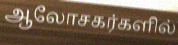
ஆலோசகர்களில்